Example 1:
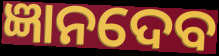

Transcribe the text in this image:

ଜ୍ଞାନଦେବ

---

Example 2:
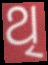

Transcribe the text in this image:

ଥି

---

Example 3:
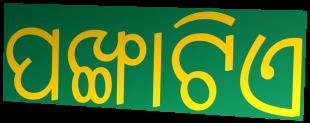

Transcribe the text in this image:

ପଙ୍ଖାଟିଏ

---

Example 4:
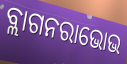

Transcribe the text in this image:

ବ୍ଲାଗନରାଭୋଭ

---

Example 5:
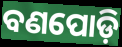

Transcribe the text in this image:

ବଣପୋଡ଼ି